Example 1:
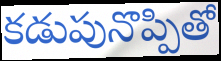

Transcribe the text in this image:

కడుపునొప్పితో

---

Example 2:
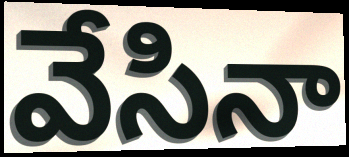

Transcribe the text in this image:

వేసినా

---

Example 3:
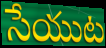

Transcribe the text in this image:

సేయుట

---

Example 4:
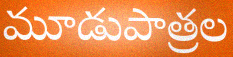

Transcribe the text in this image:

మూడుపాత్రల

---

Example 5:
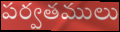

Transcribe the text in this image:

పర్వతములు